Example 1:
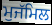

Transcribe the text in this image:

ਮੁਜੱਮਿਲ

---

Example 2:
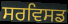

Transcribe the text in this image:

ਸਰਵਿਸਡ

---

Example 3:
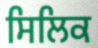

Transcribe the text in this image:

ਸਿਲਿਕ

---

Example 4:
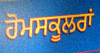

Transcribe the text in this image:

ਹੋਮਸਕੂਲਰਾਂ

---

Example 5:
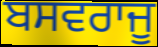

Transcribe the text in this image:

ਬਸਵਰਾਜੂ